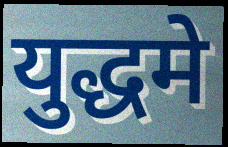
युद्धमे